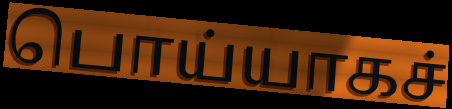
பொய்யாகச்